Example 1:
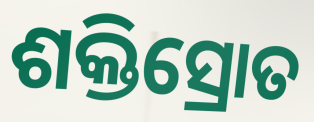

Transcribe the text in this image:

ଶକ୍ତିସ୍ରୋତ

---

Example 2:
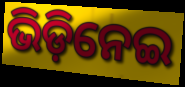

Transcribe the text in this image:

ଭିଡ଼ିନେଇ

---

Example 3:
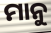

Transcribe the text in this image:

ମାନୁ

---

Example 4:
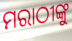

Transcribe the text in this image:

ମରାଠୀଙ୍କୁ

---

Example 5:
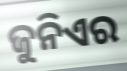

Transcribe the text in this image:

ଜୁନିଏର